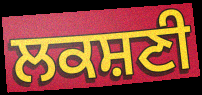
ਲਕਸ਼ਣੀ